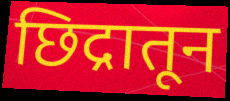
छिद्रातून